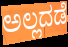
ಅಲ್ಲದಡೆ